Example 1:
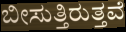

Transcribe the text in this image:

ಬೀಸುತ್ತಿರುತ್ತವೆ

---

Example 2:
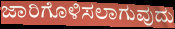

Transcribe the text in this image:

ಜಾರಿಗೊಳಿಸಲಾಗುವುದು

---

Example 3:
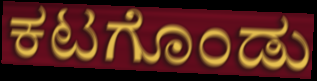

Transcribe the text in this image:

ಕಟಗೊಂಡು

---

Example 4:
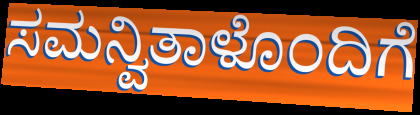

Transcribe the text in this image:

ಸಮನ್ವಿತಾಳೊಂದಿಗೆ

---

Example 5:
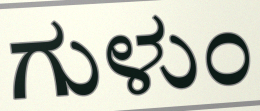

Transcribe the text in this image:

ಗುಳುಂ